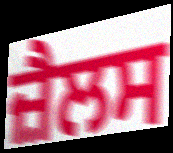
ਜ਼ੈਲਸ